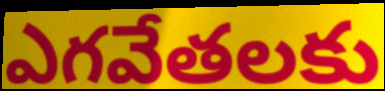
ఎగవేతలకు